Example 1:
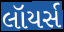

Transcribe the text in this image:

લૉયર્સ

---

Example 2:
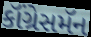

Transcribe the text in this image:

કૉંગ્રેસમૅન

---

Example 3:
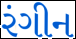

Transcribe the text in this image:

રંગીન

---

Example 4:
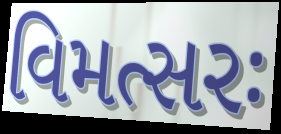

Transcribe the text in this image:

વિમત્સરઃ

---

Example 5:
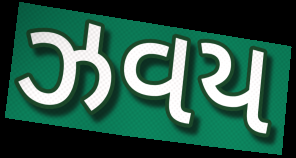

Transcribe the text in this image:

ઝવય